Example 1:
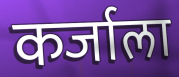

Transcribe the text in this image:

कर्जाला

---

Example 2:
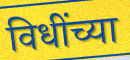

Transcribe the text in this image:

विधींच्या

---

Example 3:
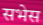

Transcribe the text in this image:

सभेस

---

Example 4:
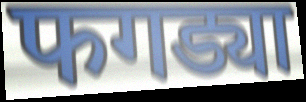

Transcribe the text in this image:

फगड्या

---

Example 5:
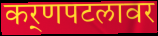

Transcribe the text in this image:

कर्णपटलावर